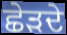
ਛੇੜਦੇ